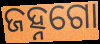
ଜହ୍ନଗୋ